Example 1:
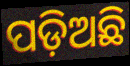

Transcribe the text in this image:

ପଡ଼ିଅଛି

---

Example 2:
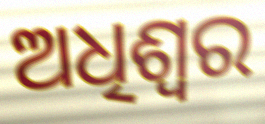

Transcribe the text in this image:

ଅଧିଶ୍ବର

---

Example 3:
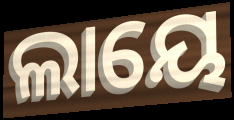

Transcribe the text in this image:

ଲାୟେ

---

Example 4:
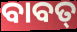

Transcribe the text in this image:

ବାବତ୍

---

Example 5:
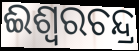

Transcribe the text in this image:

ଈଶ୍ୱରଚନ୍ଦ୍ର